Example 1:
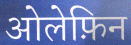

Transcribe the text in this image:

ओलेफ़िन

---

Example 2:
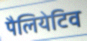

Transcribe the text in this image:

पैलियेटिव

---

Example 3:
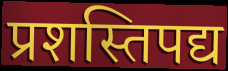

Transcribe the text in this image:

प्रशस्तिपद्य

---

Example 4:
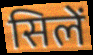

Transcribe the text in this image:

सिलें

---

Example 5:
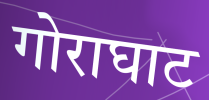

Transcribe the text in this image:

गोराघाट